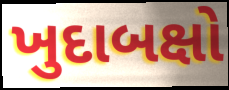
ખુદાબક્ષો